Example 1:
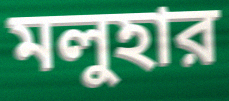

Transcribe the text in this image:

মলুহার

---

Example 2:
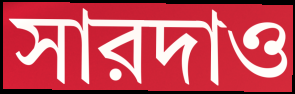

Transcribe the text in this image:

সারদাও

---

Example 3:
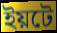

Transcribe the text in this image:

ইয়টে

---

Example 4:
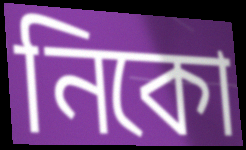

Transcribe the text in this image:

নিকো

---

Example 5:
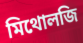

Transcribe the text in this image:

মিথোলজি